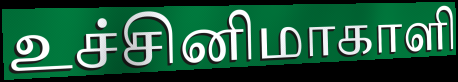
உச்சினிமாகாளி